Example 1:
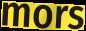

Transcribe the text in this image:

mors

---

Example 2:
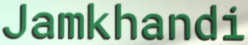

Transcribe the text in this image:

Jamkhandi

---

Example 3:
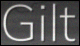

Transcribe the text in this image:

Gilt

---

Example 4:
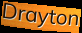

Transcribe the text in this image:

Drayton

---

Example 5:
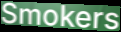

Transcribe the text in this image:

Smokers